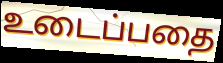
உடைப்பதை